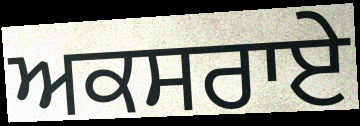
ਅਕਸਰਾਏ